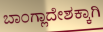
ಬಾಂಗ್ಲಾದೇಶಕ್ಕಾಗಿ